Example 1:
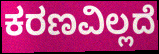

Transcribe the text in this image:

ಕರಣವಿಲ್ಲದೆ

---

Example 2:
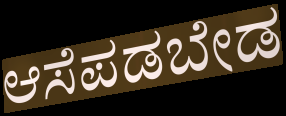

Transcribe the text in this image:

ಆಸೆಪಡಬೇಡ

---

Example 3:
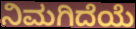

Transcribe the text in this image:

ನಿಮಗಿದೆಯೆ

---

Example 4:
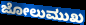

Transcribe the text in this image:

ಜೋಲುಮುಖ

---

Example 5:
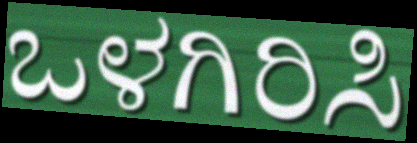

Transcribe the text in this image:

ಒಳಗಿರಿಸಿ